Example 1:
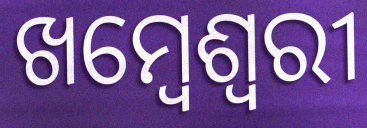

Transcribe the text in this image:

ଖମ୍ବେଶ୍ଵରୀ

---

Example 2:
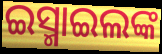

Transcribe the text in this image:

ଇସ୍ମାଇଲଙ୍କ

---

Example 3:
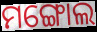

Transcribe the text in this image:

ମଙ୍ଗୋଲ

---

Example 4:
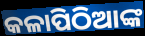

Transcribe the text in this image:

କଳାପିଠିଆଙ୍କ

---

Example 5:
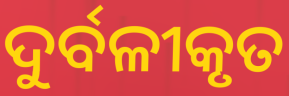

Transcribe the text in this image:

ଦୁର୍ବଳୀକୃତ